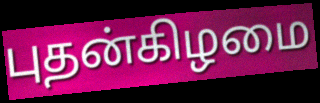
புதன்கிழமை